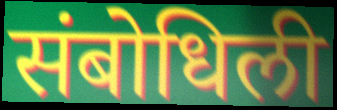
संबोधिली